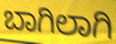
ಬಾಗಿಲಾಗಿ